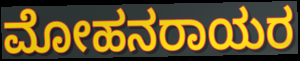
ಮೋಹನರಾಯರ